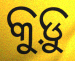
କୁଡ଼ୁ